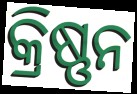
କ୍ରିଷ୍ଣନ